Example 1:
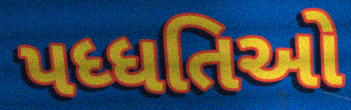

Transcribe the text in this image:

પધ્ધતિઓ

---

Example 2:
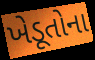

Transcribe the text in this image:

ખેડૂતોના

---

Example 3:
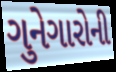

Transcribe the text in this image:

ગુનેગારોની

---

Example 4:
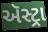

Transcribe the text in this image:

ઍસ્ટ્રા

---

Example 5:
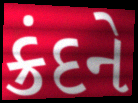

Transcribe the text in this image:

ક્રંદને